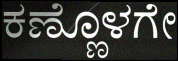
ಕಣ್ಣೊಳಗೇ